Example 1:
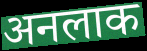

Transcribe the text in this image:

अनलाक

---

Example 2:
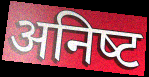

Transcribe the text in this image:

अनिष्‍ट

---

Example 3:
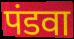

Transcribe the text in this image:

पंडवा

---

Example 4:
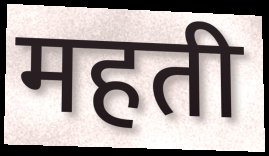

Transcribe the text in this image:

महती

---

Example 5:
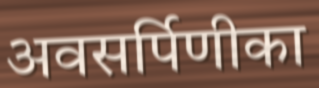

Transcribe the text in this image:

अवसर्पिणीका